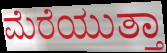
ಮೆರೆಯುತ್ತಾ